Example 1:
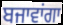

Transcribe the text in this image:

ਬਜਾਵਾਂਗਾ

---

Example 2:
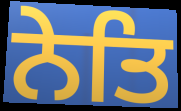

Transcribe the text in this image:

ਨੇਤਿ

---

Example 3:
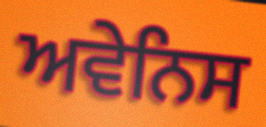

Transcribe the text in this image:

ਅਵੇਨਿਸ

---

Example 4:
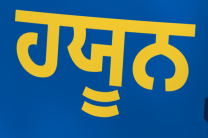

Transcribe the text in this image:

ਹਯੂਨ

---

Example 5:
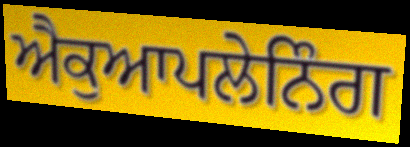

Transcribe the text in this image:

ਐਕੁਆਪਲੇਨਿੰਗ